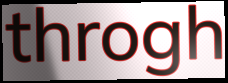
throgh